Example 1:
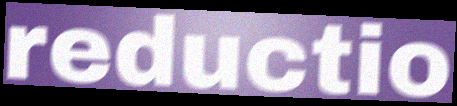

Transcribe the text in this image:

reductio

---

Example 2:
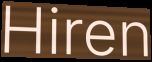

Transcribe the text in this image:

Hiren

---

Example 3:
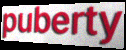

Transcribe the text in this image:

puberty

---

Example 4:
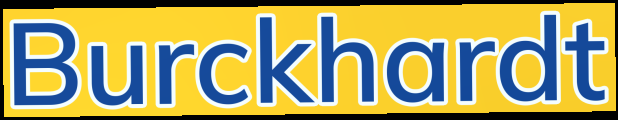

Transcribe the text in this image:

Burckhardt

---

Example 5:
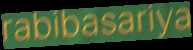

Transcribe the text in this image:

rabibasariya